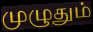
முழுதும்